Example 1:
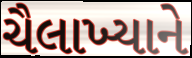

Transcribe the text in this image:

ચૈલાખ્યાને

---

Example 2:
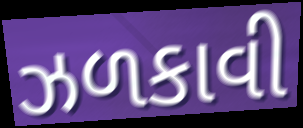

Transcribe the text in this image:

ઝળકાવી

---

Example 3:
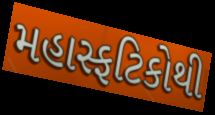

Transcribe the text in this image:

મહાસ્ફટિકોથી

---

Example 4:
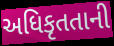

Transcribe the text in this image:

અધિકૃતતાની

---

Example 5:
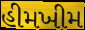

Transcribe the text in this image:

હીમખીમ